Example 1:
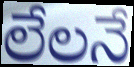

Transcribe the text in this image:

లేలనే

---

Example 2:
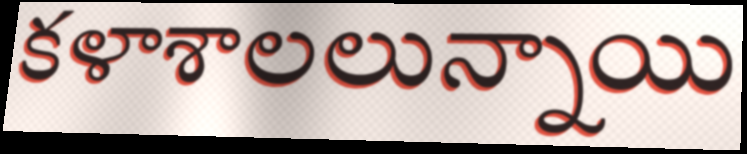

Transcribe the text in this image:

కళాశాలలున్నాయి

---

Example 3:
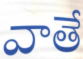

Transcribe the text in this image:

వాతే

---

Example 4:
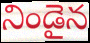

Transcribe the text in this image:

నిండైన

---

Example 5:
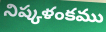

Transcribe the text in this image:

నిష్కళంకము